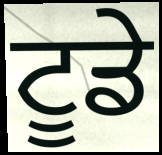
ਟੂਡੇ